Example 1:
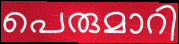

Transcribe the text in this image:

പെരുമാറി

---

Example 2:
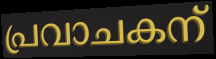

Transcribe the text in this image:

പ്രവാചകന്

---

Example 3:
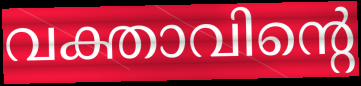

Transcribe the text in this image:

വക്താവിന്റെ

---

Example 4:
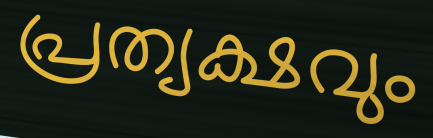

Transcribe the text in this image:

പ്രത്യക്ഷവും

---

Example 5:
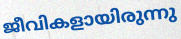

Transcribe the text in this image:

ജീവികളായിരുന്നു